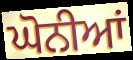
ਘੋਨੀਆਂ